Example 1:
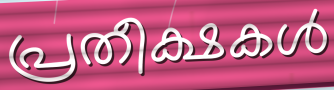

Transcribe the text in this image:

പ്രതീക്ഷകൾ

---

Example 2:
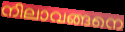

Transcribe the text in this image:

നിലാവങ്ങനെ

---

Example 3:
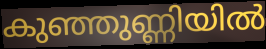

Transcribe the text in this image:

കുഞ്ഞുണ്ണിയിൽ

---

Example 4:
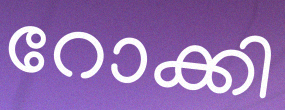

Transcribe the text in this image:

റോക്കി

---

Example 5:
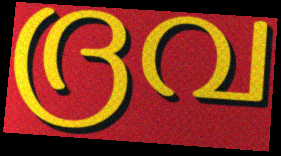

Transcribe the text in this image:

ദ്രവ